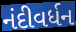
નંદીવર્ધન